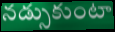
నడ్సుకుంటా